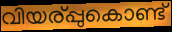
വിയര്പ്പുകൊണ്ട്